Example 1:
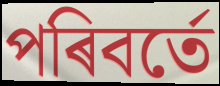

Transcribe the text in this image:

পৰিবৰ্তে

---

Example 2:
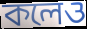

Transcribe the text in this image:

কলেও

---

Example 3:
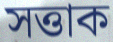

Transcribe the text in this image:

সত্তাক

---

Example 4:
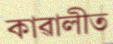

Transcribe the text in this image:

কাৱালীত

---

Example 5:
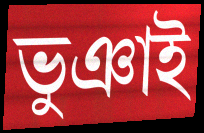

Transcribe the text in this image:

ভুঞাই